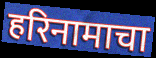
हरिनामाचा